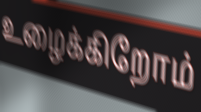
உழைக்கிறோம்